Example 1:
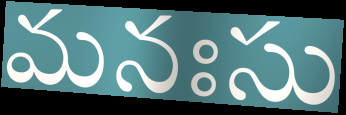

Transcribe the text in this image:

మనఃసు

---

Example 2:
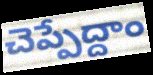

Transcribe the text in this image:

చెప్పేద్దాం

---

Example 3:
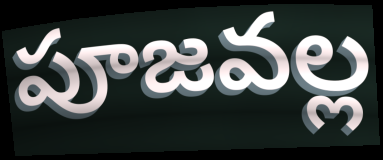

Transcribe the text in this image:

పూజవల్ల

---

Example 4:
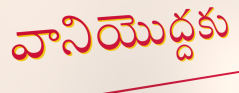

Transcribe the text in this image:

వానియొద్దకు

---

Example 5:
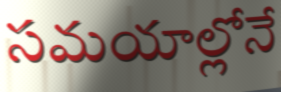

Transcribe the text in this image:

సమయాల్లోనే